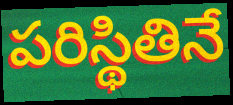
పరిస్థితినే